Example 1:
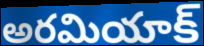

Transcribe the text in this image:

అరమియాక్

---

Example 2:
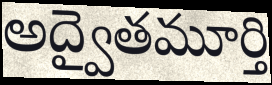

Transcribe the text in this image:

అద్వైతమూర్తి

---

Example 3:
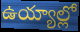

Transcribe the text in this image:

ఉయ్యాల్లో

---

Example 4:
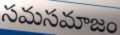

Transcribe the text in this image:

సమసమాజం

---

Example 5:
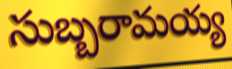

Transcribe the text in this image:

సుబ్బరామయ్య